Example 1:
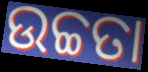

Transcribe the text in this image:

ଉଚ୍ଚତା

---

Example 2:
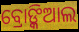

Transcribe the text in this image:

ବ୍ରୋଙ୍କିଆଲ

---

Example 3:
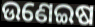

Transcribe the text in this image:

ଉଣେଇଷ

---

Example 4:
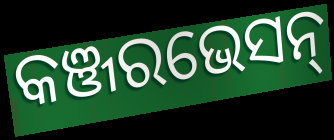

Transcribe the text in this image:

କଞ୍ଜରଭେସନ୍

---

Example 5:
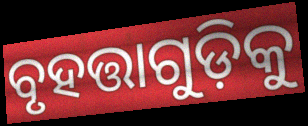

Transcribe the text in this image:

ବୃହତ୍ତାଗୁଡ଼ିକୁ